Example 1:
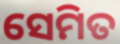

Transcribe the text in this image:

ସେମିତ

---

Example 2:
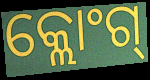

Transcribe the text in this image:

କ୍ଲୋଂଗ୍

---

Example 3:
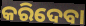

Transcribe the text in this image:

କରିଦେବା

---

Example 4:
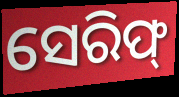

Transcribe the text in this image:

ସେରିଫ୍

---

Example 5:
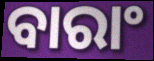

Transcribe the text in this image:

ବାରାଂ